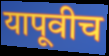
यापूवीच